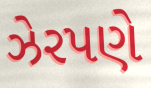
ઝેરપણે